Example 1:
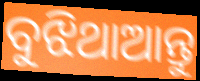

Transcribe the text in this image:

ବୁଝିଥାଆନ୍ତୁ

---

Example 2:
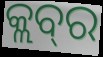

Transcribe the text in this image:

କ୍ଲବ୍‌ର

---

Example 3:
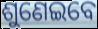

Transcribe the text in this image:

ଶୁଣେଇବେ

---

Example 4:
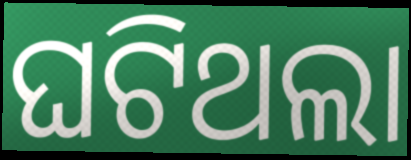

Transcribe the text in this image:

ଘଟିଥଲା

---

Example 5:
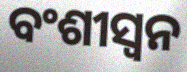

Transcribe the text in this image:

ବଂଶୀସ୍ୱନ